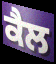
ਕੈਲ